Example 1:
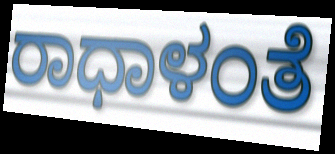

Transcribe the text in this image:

ರಾಧಾಳಂತೆ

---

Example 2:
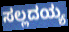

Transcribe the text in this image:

ಸಲ್ಲದಯ್ಯ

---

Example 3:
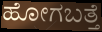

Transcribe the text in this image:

ಹೋಗಬತ್ತೆ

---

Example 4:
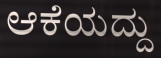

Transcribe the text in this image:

ಆಕೆಯದ್ದು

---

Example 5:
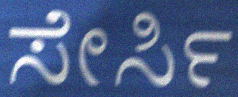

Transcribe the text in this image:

ಸೇರ್ಸಿ